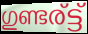
ഗുണ്ടര്ട്ട്